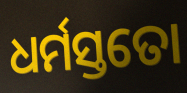
ଧର୍ମସ୍ତତୋ